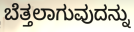
ಬೆತ್ತಲಾಗುವುದನ್ನು